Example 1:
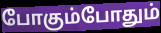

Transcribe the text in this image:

போகும்போதும்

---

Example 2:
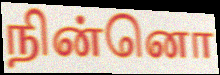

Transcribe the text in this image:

நின்னொ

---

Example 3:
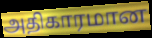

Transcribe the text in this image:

அதிகாரமான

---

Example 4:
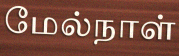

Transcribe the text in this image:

மேல்நாள்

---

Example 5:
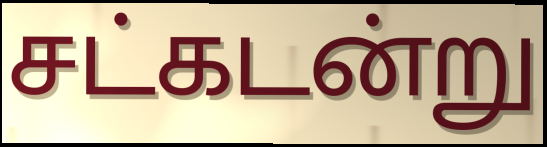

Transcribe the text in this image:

சட்கடன்று